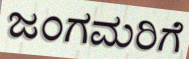
ಜಂಗಮರಿಗೆ